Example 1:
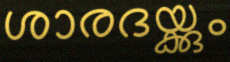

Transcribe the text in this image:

ശാരദയ്ക്കും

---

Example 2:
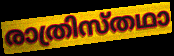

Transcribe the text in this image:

രാത്രിസ്തഥാ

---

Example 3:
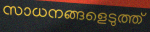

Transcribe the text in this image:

സാധനങ്ങളെടുത്ത്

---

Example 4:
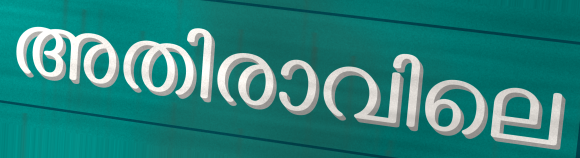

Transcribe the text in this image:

അതിരാവിലെ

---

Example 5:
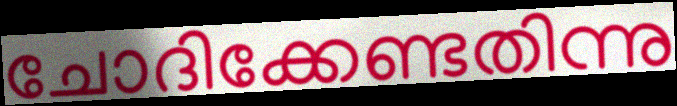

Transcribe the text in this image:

ചോദിക്കേണ്ടതിന്നു